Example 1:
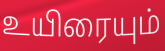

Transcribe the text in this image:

உயிரையும்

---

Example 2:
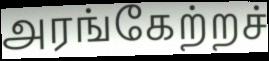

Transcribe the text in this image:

அரங்கேற்றச்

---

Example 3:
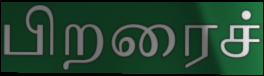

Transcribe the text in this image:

பிறரைச்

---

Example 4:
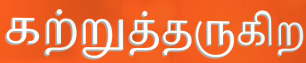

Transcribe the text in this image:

கற்றுத்தருகிற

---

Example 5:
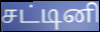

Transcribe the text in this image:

சட்டினி